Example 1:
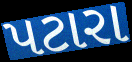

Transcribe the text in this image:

પટારા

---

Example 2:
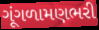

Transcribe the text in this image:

ગૂંગળામણભરી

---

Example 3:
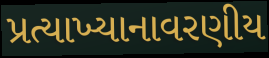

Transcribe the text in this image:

પ્રત્યાખ્યાનાવરણીય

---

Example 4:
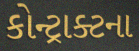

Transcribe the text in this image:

કોન્ટ્રાક્ટના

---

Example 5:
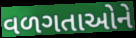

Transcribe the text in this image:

વળગતાઓને